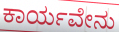
ಕಾರ್ಯವೇನು